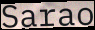
Sarao